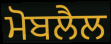
ਮੋਬਲੈਲ